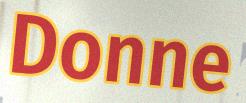
Donne